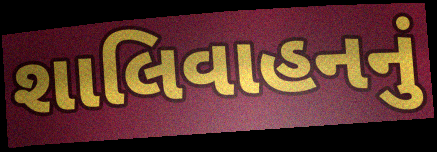
શાલિવાહનનું